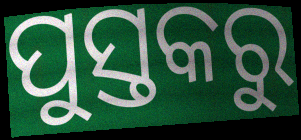
ପୁସ୍ତକରୁ